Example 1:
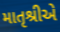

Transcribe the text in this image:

માતૃશ્રીએ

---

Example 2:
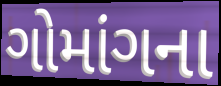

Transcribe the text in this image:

ગોમાંગના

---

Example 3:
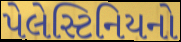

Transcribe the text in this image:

પેલેસ્ટિનિયનો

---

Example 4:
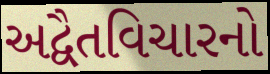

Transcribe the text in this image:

અદ્વૈતવિચારનો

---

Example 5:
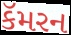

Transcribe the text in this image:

કૅમરન